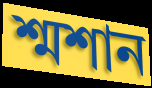
শ্মশান